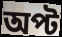
অপ্ট